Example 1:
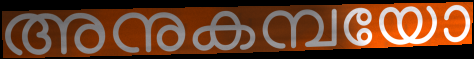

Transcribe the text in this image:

അനുകമ്പയോ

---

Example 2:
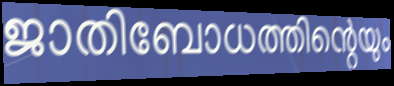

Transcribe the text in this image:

ജാതിബോധത്തിന്റെയും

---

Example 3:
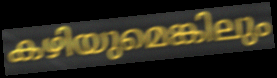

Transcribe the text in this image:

കഴിയുമെങ്കിലും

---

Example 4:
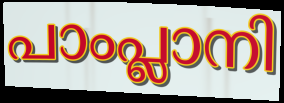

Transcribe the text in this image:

പാംപ്ലാനി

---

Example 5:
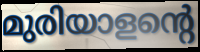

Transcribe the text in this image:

മുരിയാളന്റെ